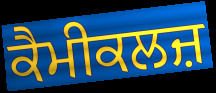
ਕੈਮੀਕਲਜ਼